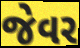
જેવર